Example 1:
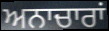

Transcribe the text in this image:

ਅਨਾਚਾਰਾਂ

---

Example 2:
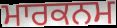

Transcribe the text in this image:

ਮਾਰਕਨਮ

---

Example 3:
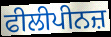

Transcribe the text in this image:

ਫੀਲੀਪੀਨਜ਼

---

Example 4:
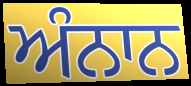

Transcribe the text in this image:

ਅੰਨਾਨ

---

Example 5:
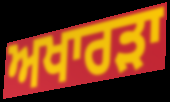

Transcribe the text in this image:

ਅਖਾਰੜਾ